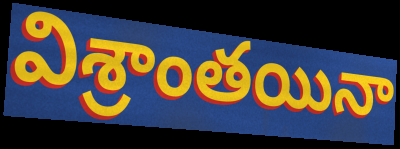
విశ్రాంతయినా